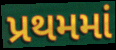
પ્રથમમાં